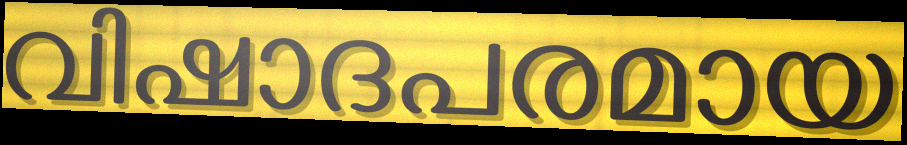
വിഷാദപരമായ